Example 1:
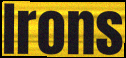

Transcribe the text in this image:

Irons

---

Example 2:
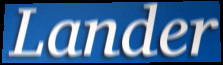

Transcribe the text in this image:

Lander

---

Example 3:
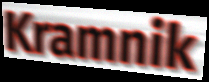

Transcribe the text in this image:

Kramnik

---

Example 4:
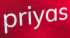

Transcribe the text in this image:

priyas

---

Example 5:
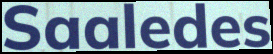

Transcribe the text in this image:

Saaledes